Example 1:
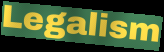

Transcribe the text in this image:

Legalism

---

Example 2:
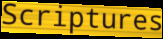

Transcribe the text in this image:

Scriptures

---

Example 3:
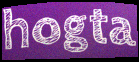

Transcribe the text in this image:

hogta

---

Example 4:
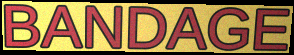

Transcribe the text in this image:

BANDAGE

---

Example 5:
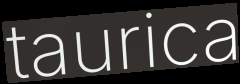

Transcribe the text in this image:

taurica